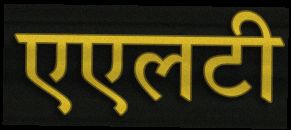
एएलटी